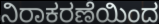
ನಿರಾಕರಣೆಯಿಂದ